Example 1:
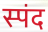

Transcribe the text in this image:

स्पंद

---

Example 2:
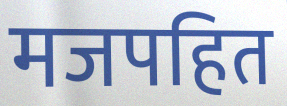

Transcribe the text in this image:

मजपहित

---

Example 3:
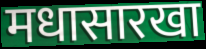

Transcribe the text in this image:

मधासारखा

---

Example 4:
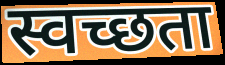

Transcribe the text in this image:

स्वच्छता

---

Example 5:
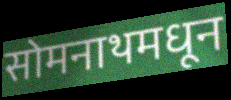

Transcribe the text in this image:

सोमनाथमधून